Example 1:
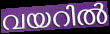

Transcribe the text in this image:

വയറിൽ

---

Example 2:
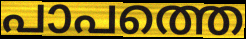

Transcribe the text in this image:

പാപത്തെ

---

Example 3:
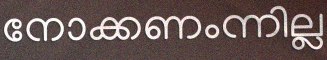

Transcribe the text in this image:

നോക്കണംന്നില്ല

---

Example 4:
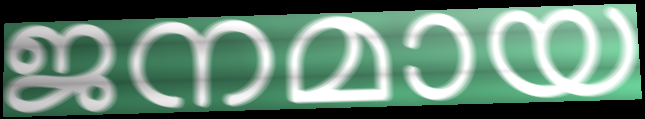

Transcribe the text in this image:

ജനമായ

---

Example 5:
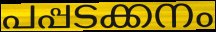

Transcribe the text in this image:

പപ്പടക്കനം